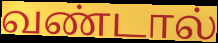
வண்டால்